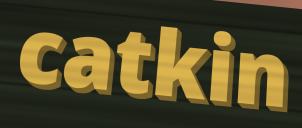
catkin